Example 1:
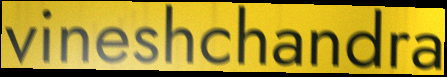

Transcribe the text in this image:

vineshchandra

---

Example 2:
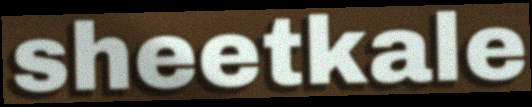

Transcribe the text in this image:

sheetkale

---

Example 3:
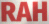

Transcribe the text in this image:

RAH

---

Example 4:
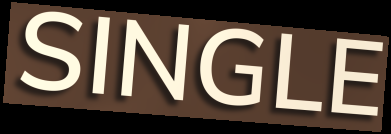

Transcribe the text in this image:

SINGLE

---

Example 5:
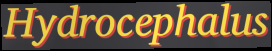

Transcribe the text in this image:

Hydrocephalus